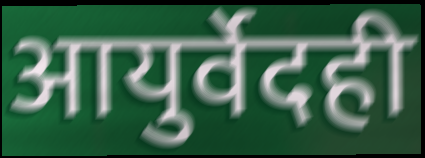
आयुर्वेदही